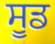
ਸੂਡ